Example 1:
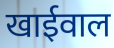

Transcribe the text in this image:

खाईवाल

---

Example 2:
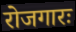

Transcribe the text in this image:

रोजगारः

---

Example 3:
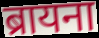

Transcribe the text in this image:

ब्रायना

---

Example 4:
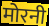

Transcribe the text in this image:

मोरनी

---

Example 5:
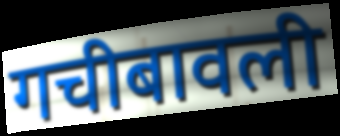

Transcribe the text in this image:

गचीबावली